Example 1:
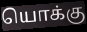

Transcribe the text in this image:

யொக்கு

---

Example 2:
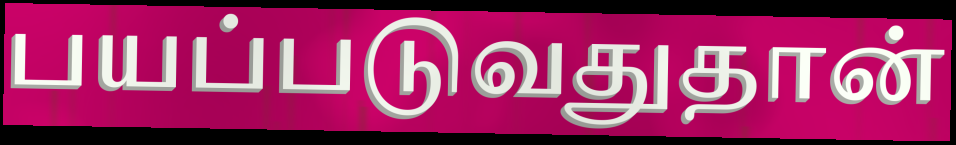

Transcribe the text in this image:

பயப்படுவதுதான்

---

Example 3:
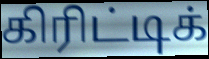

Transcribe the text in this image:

கிரிட்டிக்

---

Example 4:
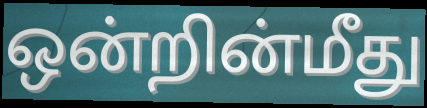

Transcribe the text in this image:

ஒன்றின்மீது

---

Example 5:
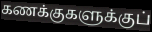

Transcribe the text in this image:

கணக்குகளுக்குப்